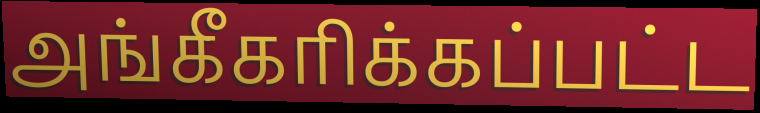
அங்கீகரிக்கப்பட்ட